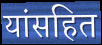
यांसहित